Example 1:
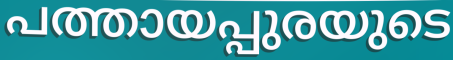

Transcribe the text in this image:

പത്തായപ്പുരയുടെ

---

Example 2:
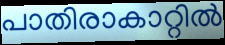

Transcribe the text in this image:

പാതിരാകാറ്റിൽ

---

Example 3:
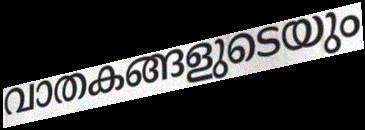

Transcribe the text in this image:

വാതകങ്ങളുടെയും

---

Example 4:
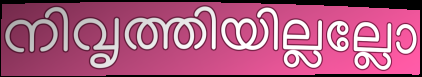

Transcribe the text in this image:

നിവൃത്തിയില്ലല്ലോ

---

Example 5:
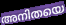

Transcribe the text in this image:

അനിതയെ